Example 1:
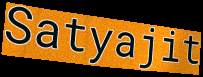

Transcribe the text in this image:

Satyajit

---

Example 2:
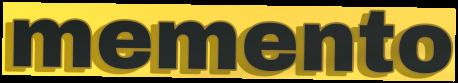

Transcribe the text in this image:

memento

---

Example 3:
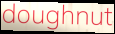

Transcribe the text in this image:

doughnut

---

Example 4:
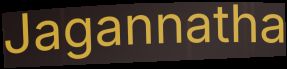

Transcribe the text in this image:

Jagannatha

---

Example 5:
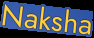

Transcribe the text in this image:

Naksha